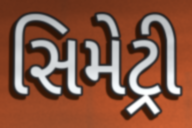
સિમેટ્રી